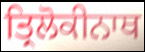
ਤ੍ਰਿਲੋਕੀਨਾਥ